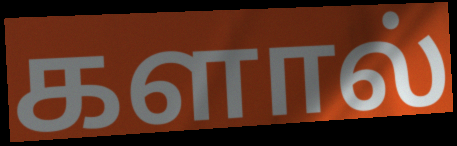
களால்